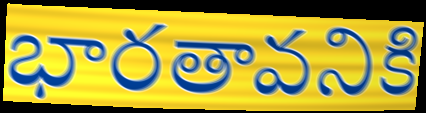
భారతావనికి